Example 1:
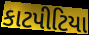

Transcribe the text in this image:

કાટપીટિયા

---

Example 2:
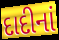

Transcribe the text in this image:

દાદીનાં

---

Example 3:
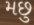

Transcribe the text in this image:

મછુ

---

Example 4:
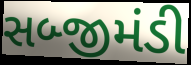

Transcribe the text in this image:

સબ્જીમંડી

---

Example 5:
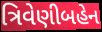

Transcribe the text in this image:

ત્રિવેણીબહેન